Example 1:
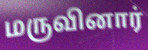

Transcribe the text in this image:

மருவினார்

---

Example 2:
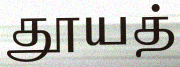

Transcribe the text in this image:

தூயத்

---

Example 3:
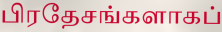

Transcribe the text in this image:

பிரதேசங்களாகப்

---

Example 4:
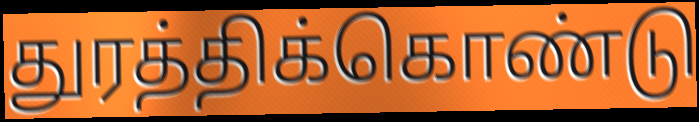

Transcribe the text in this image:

துரத்திக்கொண்டு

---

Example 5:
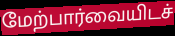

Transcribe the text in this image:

மேற்பார்வையிடச்